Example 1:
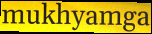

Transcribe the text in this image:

mukhyamga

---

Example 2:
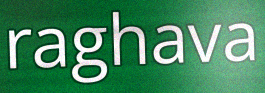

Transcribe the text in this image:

raghava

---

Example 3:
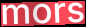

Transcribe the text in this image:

mors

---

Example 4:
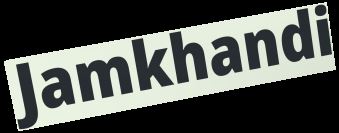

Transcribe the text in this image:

Jamkhandi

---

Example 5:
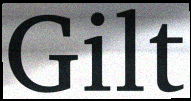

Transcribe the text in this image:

Gilt